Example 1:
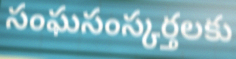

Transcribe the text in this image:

సంఘసంస్కర్తలకు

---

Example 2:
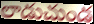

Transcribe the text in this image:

లాడుచుండ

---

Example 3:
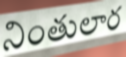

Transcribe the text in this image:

నింతులార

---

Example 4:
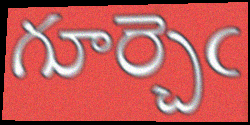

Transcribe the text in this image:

గూర్చెఁ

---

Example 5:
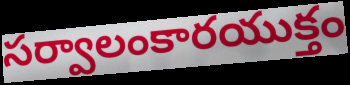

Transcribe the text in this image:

సర్వాలంకారయుక్తం